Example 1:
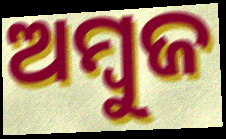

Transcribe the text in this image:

ଅମ୍ବୁଜ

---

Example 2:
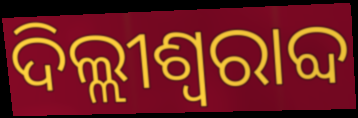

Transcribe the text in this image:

ଦିଲ୍ଲୀଶ୍ୱରାବ୍ଦ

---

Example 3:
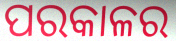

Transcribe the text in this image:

ପରକାଳର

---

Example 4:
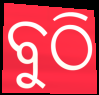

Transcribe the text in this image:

ବୁଠି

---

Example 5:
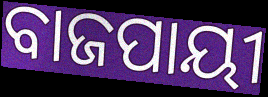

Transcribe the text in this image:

ବାଜପାୟୀ